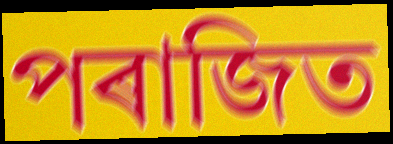
পৰাজিত